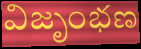
విజృంభణ